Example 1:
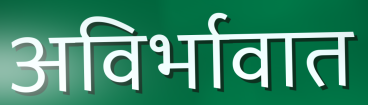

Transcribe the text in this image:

अविर्भावात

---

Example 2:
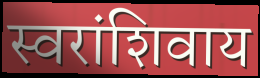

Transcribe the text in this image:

स्वरांशिवाय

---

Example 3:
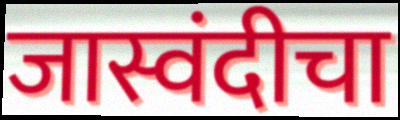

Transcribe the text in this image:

जास्वंदीचा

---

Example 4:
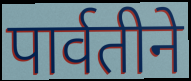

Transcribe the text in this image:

पार्वतीने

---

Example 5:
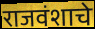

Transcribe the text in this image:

राजवंशाचे